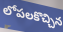
లోపలకొచ్చిన